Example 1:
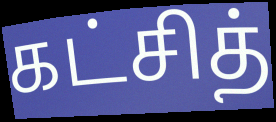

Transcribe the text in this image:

கட்சித்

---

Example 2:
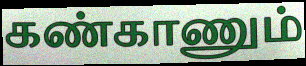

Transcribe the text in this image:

கண்காணும்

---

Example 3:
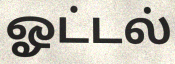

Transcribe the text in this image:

ஓட்டல்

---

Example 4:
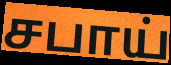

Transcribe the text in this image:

சபாய்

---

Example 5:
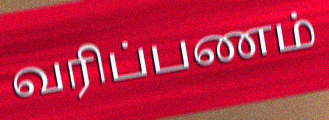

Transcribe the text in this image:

வரிப்பணம்